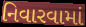
નિવારવામાં